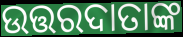
ଉତ୍ତରଦାତାଙ୍କ